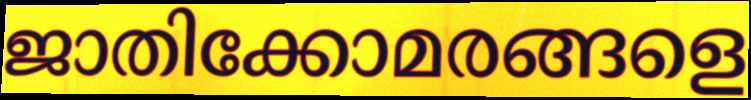
ജാതിക്കോമരങ്ങളെ